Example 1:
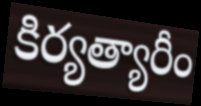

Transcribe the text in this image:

కిర్యత్యారీం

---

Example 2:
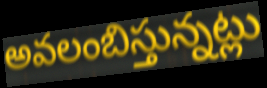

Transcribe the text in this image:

అవలంబిస్తున్నట్లు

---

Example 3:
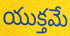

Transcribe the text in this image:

యుక్తమే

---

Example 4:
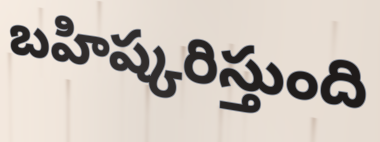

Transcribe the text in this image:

బహిష్కరిస్తుంది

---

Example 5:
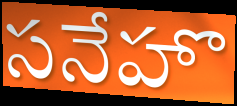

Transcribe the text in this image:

సనేహొ